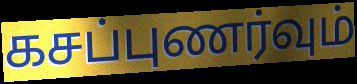
கசப்புணர்வும்